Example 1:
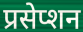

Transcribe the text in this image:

प्रसेप्शन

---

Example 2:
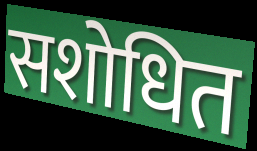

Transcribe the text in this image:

सशोधित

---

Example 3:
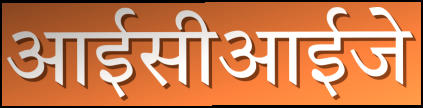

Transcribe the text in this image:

आईसीआईजे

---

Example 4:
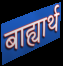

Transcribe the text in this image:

बाह्यार्थ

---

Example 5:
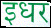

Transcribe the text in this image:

इधर